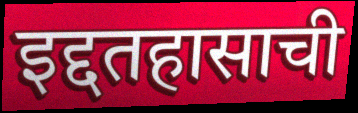
इद्दतहासाची